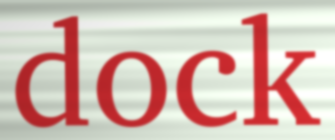
dock